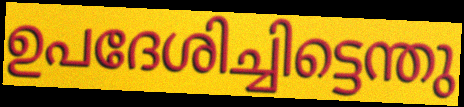
ഉപദേശിച്ചിട്ടെന്തു